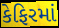
કેફિરમાં